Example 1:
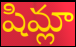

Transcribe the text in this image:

షిమ్లా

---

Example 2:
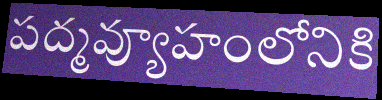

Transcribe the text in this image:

పద్మవ్యూహంలోనికి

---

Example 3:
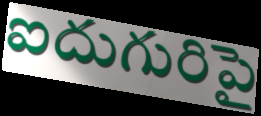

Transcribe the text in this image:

ఐదుగురిపై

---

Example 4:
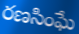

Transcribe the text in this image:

రణసింఘే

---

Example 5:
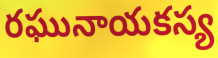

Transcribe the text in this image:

రఘునాయకస్య